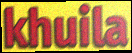
khuila